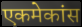
एकमेकांस